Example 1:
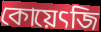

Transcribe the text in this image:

কোয়েৎজি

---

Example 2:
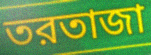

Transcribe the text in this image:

তরতাজা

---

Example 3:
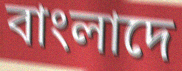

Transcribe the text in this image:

বাংলাদে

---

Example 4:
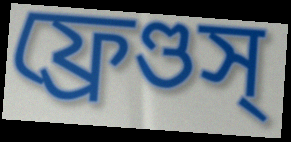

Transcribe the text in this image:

ফ্রেণ্ডস্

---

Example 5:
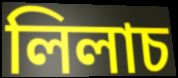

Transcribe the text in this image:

লিলাচ